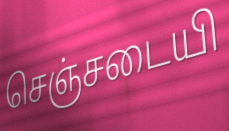
செஞ்சடையி